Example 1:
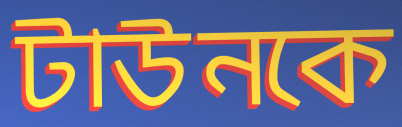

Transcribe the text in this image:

টাউনকে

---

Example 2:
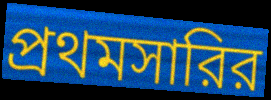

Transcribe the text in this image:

প্রথমসারির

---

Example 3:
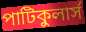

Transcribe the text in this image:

পাটিকুলার্স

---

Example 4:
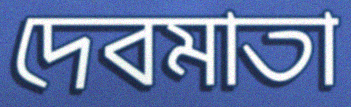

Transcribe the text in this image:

দেবমাতা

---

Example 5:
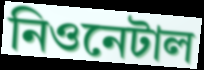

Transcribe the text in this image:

নিওনেটাল